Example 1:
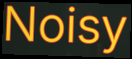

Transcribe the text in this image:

Noisy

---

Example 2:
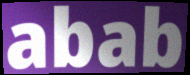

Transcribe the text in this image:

abab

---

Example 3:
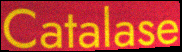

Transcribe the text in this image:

Catalase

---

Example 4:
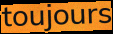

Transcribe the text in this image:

toujours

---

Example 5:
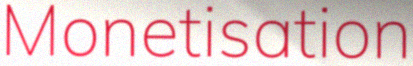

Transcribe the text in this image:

Monetisation